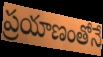
ప్రయాణంతోనే